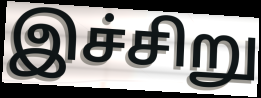
இச்சிறு